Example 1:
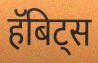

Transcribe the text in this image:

हॅबिट्स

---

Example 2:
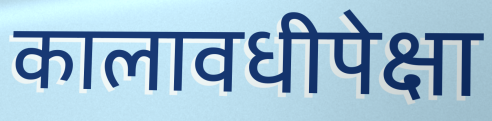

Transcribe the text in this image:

कालावधीपेक्षा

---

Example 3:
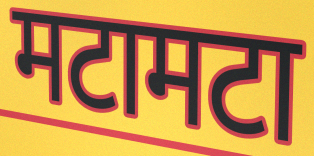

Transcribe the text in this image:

मटामटा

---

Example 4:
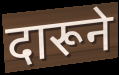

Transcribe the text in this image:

दारूने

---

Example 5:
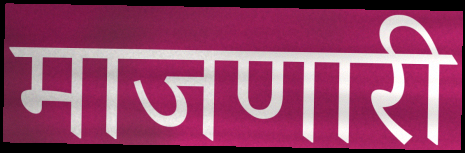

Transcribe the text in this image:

माजणारी